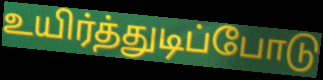
உயிர்த்துடிப்போடு